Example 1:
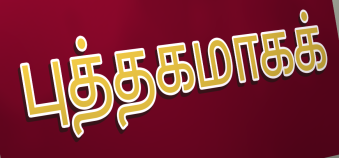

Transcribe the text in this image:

புத்தகமாகக்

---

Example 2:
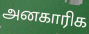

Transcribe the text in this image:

அனகாரிக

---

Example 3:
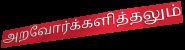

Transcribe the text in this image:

அறவோர்க்களித்தலும்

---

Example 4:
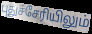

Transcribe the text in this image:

புதுச்சேரியிலும்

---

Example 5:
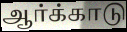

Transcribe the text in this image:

ஆர்க்காடு